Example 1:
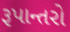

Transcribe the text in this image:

રૂપાન્તરો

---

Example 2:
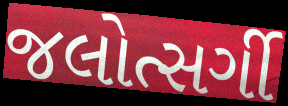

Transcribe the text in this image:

જલોત્સર્ગી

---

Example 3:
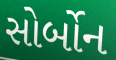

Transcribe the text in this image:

સોર્બોન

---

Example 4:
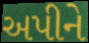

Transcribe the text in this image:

અપીને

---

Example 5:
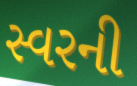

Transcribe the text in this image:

સ્વરની